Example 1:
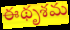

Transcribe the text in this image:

ఈథృశమ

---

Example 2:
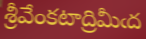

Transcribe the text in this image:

శ్రీవేంకటాద్రిమీఁద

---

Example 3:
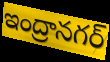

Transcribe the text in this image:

ఇంద్రానగర్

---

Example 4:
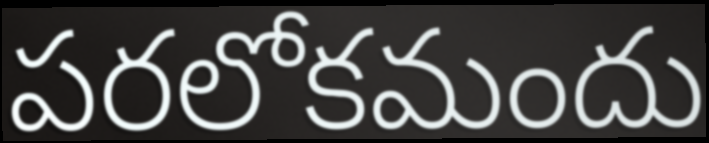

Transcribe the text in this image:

పరలోకమందు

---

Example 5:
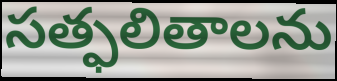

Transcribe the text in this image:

సత్ఫలితాలను